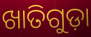
ଖାତିଗୁଡ଼ା